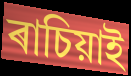
ৰাচিয়াই